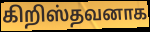
கிறிஸ்தவனாக